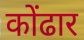
कोंढार